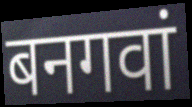
बनगवां